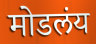
मोडलंय